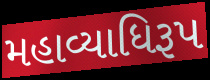
મહાવ્યાધિરૂપ